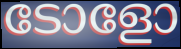
ടോളോ